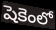
షెకెంలో